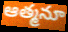
ఆత్మనూ